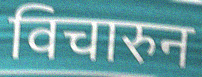
विचारुन